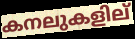
കനലുകളില്